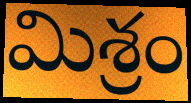
మిశ్రం